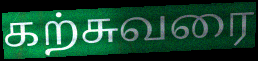
கற்சுவரை